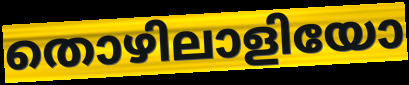
തൊഴിലാളിയോ